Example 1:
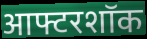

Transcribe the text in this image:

आफ्टरशॉक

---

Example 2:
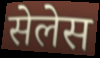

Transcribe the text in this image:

सेलेस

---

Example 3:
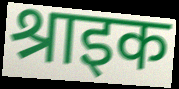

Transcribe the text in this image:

श्राइक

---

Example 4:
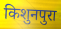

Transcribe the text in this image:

किशुनपुरा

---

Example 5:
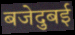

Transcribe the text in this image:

बजेदुबई